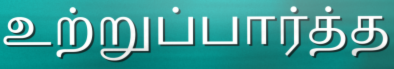
உற்றுப்பார்த்த